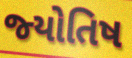
જ્‍યોતિષ